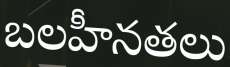
బలహీనతలు